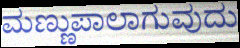
ಮಣ್ಣುಪಾಲಾಗುವುದು